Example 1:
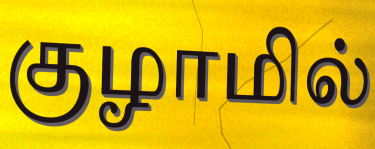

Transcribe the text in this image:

குழாமில்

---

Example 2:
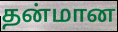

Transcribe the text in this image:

தன்மான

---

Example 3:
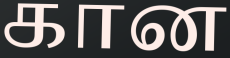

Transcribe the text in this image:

கான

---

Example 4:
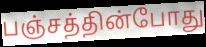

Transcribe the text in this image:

பஞ்சத்தின்போது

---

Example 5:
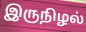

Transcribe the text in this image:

இருநிழல்